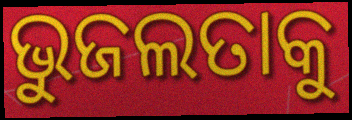
ଭୁଜଲତାକୁ